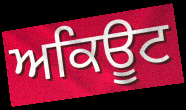
ਅਕਿਊਟ